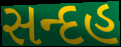
સન્દહ